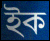
ইক